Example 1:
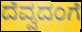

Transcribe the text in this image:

ದೆವ್ವದಂಗೆ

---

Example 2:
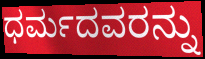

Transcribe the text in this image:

ಧರ್ಮದವರನ್ನು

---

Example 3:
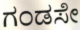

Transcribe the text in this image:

ಗಂಡಸೇ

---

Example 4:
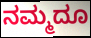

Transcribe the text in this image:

ನಮ್ಮದೂ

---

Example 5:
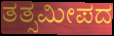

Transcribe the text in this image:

ತತ್ಸಮೀಪದ